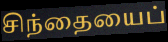
சிந்தையைப்